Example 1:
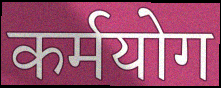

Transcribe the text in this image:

कर्मयोग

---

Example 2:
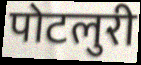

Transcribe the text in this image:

पोटलुरी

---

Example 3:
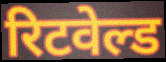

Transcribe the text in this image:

रिटवेल्ड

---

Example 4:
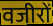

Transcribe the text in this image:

वजीरों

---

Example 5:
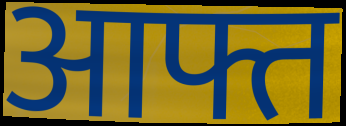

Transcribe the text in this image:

आफ्त